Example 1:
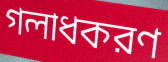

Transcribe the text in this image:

গলাধকরণ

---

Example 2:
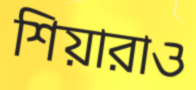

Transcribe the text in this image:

শিয়ারাও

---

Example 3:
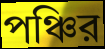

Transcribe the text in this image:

পঞ্চির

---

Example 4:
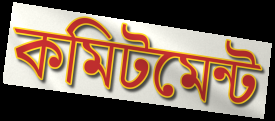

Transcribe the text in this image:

কমিটমেন্ট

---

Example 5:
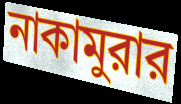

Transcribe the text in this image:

নাকামুরার